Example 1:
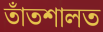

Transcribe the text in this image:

তাঁতশালত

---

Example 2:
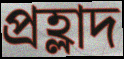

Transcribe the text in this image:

প্ৰহ্লাদ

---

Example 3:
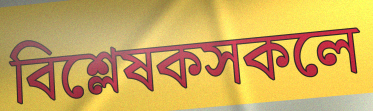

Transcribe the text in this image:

বিশ্লেষকসকলে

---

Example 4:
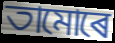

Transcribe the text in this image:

তামোৰে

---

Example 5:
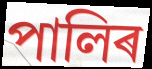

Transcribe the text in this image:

পালিৰ